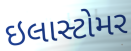
ઇલાસ્ટોમર